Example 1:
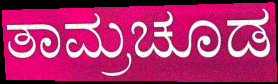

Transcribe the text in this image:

ತಾಮ್ರಚೂಡ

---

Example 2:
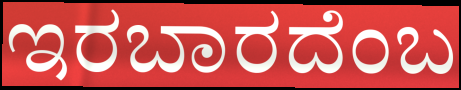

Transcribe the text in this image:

ಇರಬಾರದೆಂಬ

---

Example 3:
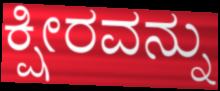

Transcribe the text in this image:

ಕ್ಷೀರವನ್ನು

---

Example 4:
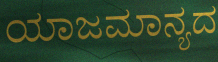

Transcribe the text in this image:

ಯಾಜಮಾನ್ಯದ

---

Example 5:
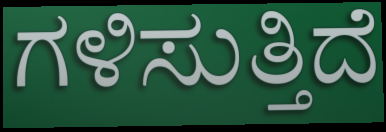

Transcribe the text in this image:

ಗಳಿಸುತ್ತಿದೆ